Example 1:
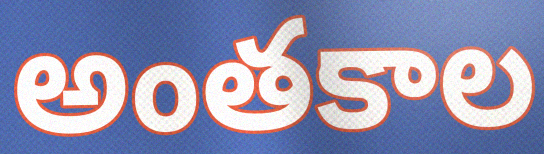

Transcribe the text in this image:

అంతకాల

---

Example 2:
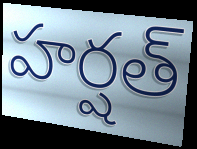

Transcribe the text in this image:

హర్షత్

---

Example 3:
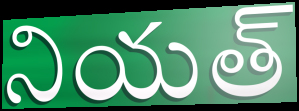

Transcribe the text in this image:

నియత్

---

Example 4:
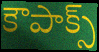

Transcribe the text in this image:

కౌపాక్స్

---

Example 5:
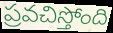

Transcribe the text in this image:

ప్రవచిస్తోంది